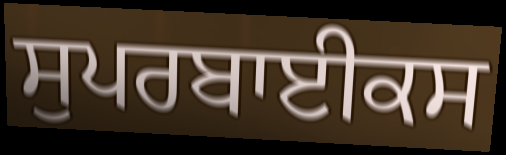
ਸੁਪਰਬਾਈਕਸ